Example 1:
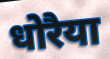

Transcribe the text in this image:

धोरैया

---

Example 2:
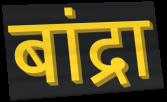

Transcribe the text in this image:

बांद्रा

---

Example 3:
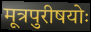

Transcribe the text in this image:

मूत्रपुरीषयोः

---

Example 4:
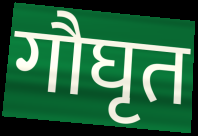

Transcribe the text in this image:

गौघृत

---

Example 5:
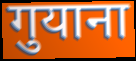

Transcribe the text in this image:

गुयाना